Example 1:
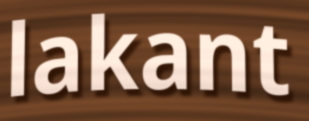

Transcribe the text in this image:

lakant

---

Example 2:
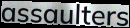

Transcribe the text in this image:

assaulters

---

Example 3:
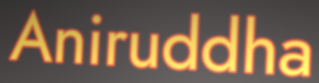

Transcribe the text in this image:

Aniruddha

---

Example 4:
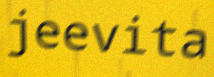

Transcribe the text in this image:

jeevita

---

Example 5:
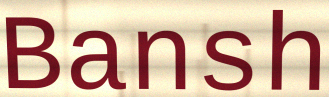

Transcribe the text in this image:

Bansh